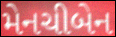
મેનચીબેન